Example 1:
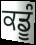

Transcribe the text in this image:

ਕਡੂੰ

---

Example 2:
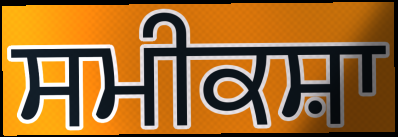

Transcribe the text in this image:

ਸਮੀਕਸ਼ਾ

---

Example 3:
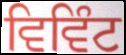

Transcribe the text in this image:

ਵਿਵਿੰਟ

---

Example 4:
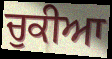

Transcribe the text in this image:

ਚੁਕੀਆ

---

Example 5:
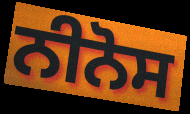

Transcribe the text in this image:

ਨੀਨੋਸ